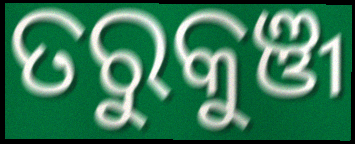
ତରୁକୁଞ୍ଜ